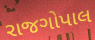
રાજગોપાલ